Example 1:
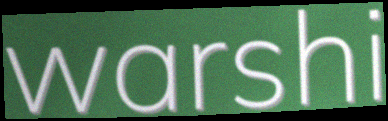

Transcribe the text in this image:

warshi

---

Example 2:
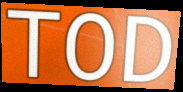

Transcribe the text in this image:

TOD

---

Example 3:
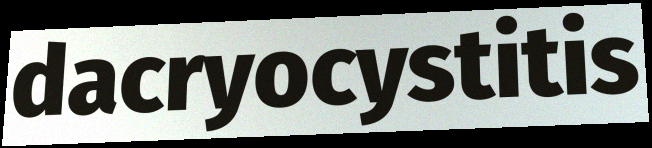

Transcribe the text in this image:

dacryocystitis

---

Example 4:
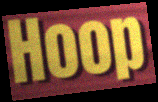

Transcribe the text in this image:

Hoop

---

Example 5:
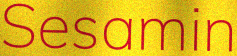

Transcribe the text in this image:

Sesamin